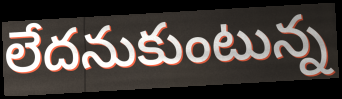
లేదనుకుంటున్న